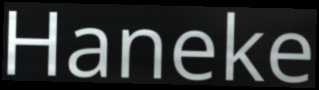
Haneke